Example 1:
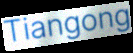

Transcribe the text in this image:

Tiangong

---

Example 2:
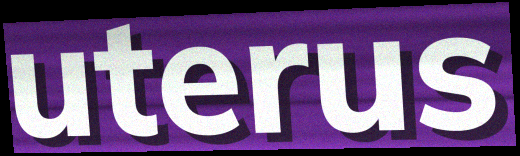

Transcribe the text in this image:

uterus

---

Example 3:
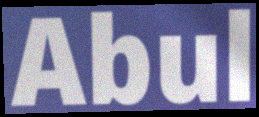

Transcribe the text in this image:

Abul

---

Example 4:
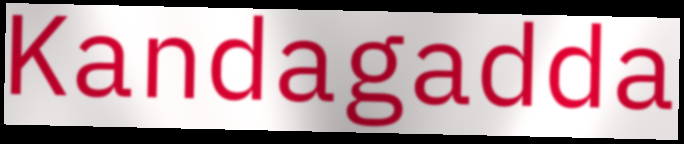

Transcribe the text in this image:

Kandagadda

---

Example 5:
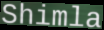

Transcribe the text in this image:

Shimla